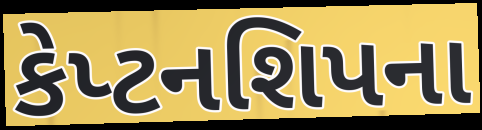
કેપ્ટનશિપના